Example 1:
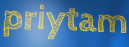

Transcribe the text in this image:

priytam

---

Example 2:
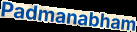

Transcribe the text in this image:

Padmanabham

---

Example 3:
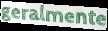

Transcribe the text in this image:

geralmente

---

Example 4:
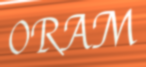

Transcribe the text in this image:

ORAM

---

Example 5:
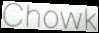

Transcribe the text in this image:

Chowk